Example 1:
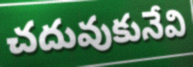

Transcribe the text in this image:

చదువుకునేవి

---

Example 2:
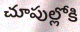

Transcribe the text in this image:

చూపుల్లోకి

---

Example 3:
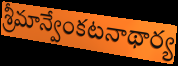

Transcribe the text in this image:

శ్రీమాన్వేంకటనాథార్య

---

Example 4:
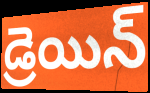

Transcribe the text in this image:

డ్రెయిన్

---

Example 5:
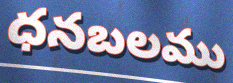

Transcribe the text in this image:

ధనబలము